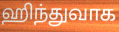
ஹிந்துவாக